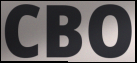
CBO